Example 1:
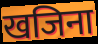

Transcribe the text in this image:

खजिना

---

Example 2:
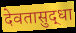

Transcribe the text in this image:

देवतासुद्धा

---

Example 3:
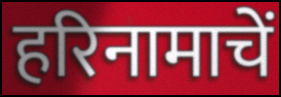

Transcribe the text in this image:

हरिनामाचें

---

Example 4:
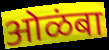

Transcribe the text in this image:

ओळंबा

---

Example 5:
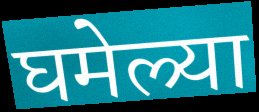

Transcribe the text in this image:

घमेल्या